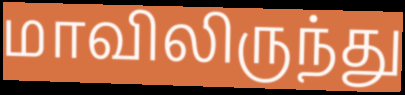
மாவிலிருந்து